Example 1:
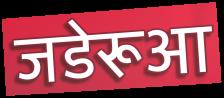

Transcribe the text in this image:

जडेरूआ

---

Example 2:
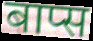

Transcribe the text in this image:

बाप्स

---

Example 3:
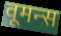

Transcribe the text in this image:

वूमन्स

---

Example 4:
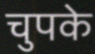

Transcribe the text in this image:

चुपके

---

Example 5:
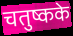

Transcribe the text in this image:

चतुष्कके